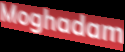
Moghadam